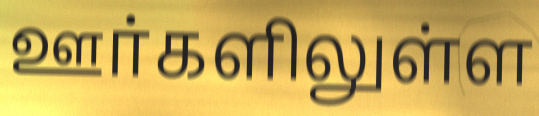
ஊர்களிலுள்ள